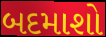
બદમાશો